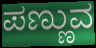
ಪಣ್ಣುವ